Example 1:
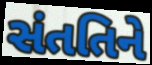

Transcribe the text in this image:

સંતતિને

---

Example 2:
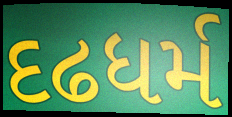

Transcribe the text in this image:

દઢધર્મ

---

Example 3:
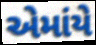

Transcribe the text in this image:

એમાંયે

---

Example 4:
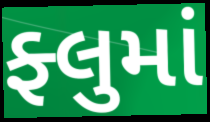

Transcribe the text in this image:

ફ્લુમાં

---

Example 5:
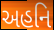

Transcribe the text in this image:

અહનિ